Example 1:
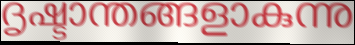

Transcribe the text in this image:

ദൃഷ്ടാന്തങ്ങളാകുന്നു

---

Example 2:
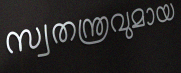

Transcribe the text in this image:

സ്വതന്ത്രവുമായ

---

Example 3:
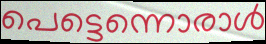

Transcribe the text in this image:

പെട്ടെന്നൊരാൾ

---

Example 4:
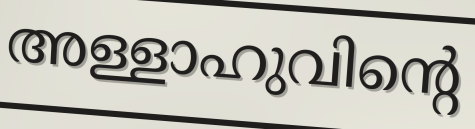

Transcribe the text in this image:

അള്ളാഹുവിന്റെ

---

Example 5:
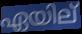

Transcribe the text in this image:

ഏയില്